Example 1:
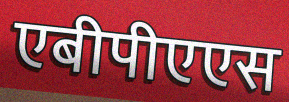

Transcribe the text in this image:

एबीपीएएस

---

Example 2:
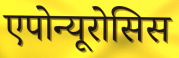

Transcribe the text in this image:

एपोन्यूरोसिस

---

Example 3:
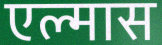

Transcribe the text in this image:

एल्मास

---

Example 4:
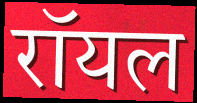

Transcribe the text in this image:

रॉयल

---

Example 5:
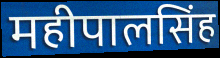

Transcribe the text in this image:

महीपालसिंह